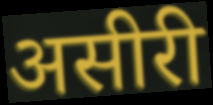
असीरी